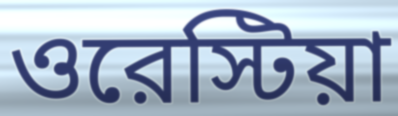
ওরেস্টিয়া